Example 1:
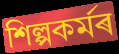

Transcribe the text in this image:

শিল্পকৰ্মৰ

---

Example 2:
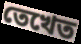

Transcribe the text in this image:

তেখেত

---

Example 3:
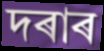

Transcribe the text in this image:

দৰাৰ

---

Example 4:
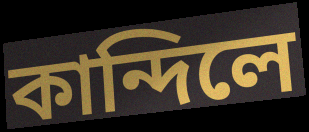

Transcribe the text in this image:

কান্দিলে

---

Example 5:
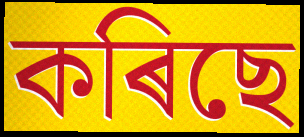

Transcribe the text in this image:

কৰিছে